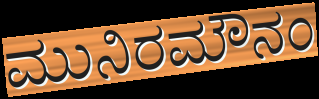
ಮುನಿರಮೌನಂ